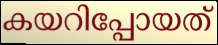
കയറിപ്പോയത്